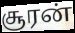
சூரன்